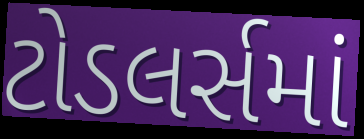
ટોડલર્સમાં